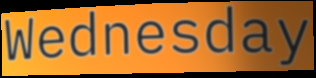
Wednesday